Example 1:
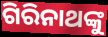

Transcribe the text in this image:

ଗିରିନାଥଙ୍କୁ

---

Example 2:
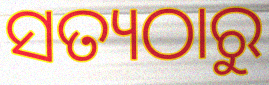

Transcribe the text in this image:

ସତ୍ୟଠାରୁ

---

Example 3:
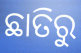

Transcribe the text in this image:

ଛାତିରୁ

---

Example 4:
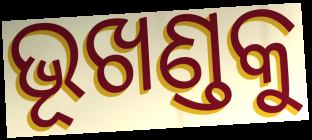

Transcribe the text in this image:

ଭୂଖଣ୍ଡକୁ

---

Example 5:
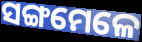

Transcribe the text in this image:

ସଙ୍ଗମେଳେ